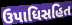
ઉપાધિસહિત